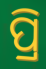
ପ୍ରି